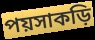
পয়সাকড়ি